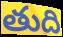
తుది